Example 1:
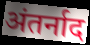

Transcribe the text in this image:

अंतर्नाद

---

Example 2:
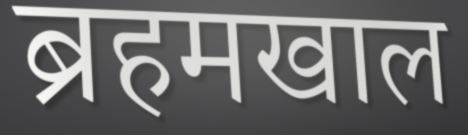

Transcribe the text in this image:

ब्रहमखाल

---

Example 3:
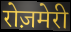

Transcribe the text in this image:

रोज़मेरी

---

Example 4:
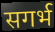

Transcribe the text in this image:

सगर्भ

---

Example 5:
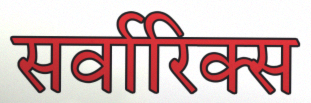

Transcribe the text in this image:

सर्वारिक्स